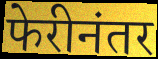
फेरीनंतर